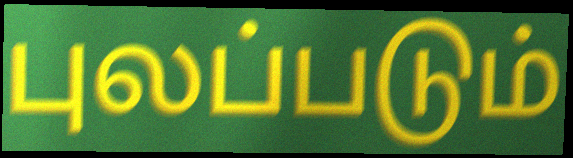
புலப்படும்